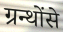
ग्रन्थोंसे